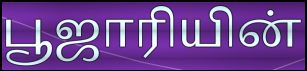
பூஜாரியின்